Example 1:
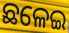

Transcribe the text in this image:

ଛଳେଇ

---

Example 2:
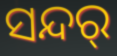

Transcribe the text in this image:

ସନ୍ଦର୍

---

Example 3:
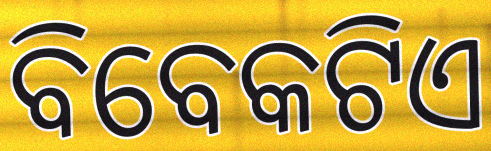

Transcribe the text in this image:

ବିବେକଟିଏ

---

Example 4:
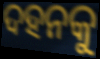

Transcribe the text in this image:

ଦହନକୁ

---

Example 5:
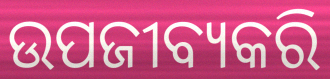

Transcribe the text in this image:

ଉପଜୀବ୍ୟକରି